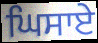
ਘਿਸਾਏ